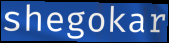
shegokar